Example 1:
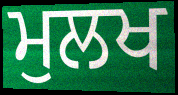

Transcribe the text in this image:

ਮੁਲਖ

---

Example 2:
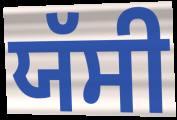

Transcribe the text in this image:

ਯੱਸੀ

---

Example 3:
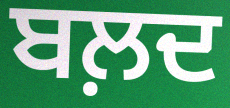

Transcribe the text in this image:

ਬਲ਼ਦ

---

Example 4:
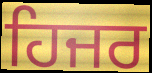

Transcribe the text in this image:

ਹਿਜਰ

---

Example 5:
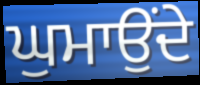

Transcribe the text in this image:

ਘੁਮਾਉਂਦੇ